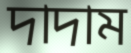
দাদাম